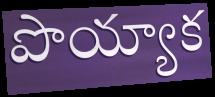
పొయ్యాక